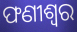
ଫଣୀଶ୍ୱର